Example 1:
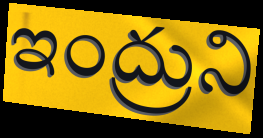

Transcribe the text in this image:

ఇంద్రుని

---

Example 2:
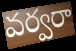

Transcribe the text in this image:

వర్వరా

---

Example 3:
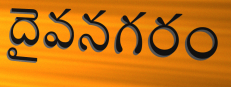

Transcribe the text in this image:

దైవనగరం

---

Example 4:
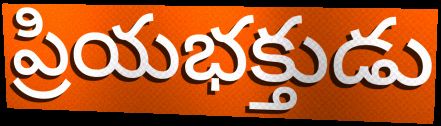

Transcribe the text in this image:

ప్రియభక్తుడు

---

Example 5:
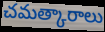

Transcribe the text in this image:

చమత్కారాలు